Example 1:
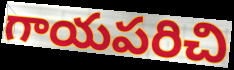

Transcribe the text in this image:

గాయపరిచి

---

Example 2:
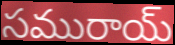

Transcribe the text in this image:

సమురాయ్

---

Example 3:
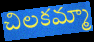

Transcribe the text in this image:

చిలకమ్మా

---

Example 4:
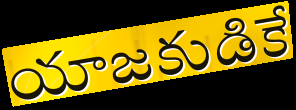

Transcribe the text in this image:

యాజకుడికే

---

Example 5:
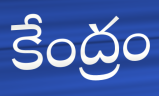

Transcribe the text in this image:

కేంద్రం